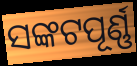
ସଙ୍କଟପୂର୍ଣ୍ଣ